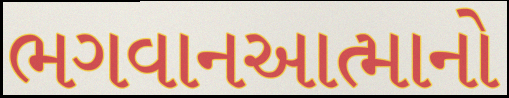
ભગવાનઆત્માનો